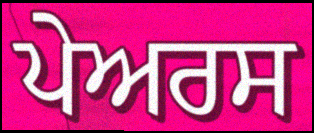
ਪੇਅਰਸ